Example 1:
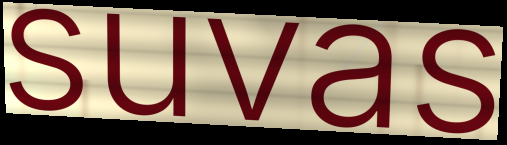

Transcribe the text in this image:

suvas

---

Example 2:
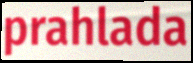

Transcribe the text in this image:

prahlada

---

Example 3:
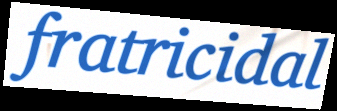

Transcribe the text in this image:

fratricidal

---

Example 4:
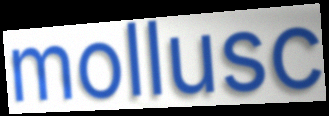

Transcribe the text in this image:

mollusc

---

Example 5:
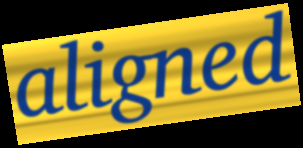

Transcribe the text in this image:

aligned